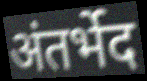
अंतर्भेद